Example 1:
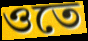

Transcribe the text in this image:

ওতে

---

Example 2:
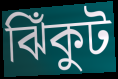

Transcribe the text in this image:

ঝিঁকুট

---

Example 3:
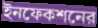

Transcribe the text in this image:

ইনফেকশনের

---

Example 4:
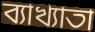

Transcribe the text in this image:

ব্যাখ্যাতা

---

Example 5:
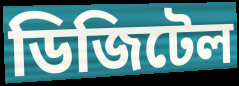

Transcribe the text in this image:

ডিজিটেল